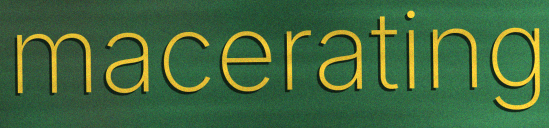
macerating